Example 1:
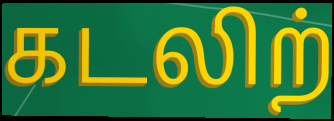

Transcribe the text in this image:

கடலிற்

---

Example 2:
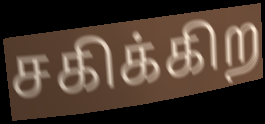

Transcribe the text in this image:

சகிக்கிற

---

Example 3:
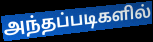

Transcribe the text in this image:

அந்தப்படிகளில்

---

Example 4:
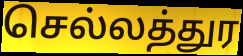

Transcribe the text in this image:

செல்லத்துர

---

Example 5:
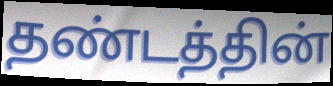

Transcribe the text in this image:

தண்டத்தின்